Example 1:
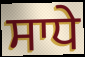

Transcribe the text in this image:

ਸਾਧੇ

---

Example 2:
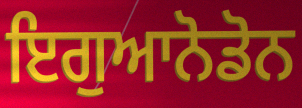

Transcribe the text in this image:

ਇਗੁਆਨੋਡੋਨ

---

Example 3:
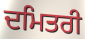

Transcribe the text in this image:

ਦਮਿਤਰੀ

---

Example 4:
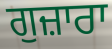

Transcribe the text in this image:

ਗੁਜ਼ਾਰਾ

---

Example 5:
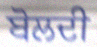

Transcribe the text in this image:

ਬੋਲਦੀ